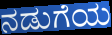
ನಡುಗೆಯ